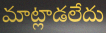
మాట్లాడలేదు